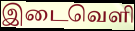
இடைவெளி